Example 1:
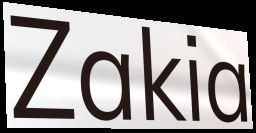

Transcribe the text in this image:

Zakia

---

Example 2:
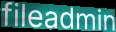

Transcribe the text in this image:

fileadmin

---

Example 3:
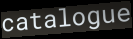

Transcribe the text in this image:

catalogue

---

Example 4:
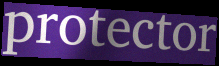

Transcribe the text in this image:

protector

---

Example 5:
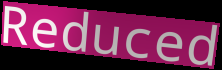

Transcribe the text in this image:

Reduced